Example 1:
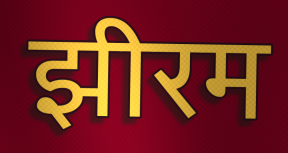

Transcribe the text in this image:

झीरम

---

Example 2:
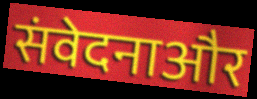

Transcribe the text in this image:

संवेदनाऔर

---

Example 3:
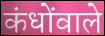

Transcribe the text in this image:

कंधोंवाले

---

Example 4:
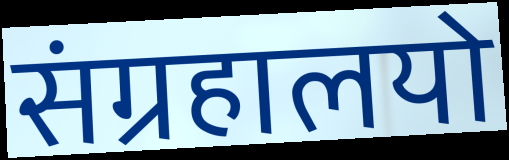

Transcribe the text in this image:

संग्रहालयो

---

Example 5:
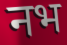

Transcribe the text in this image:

नभ